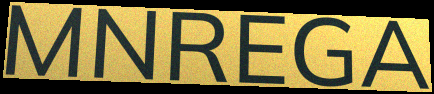
MNREGA